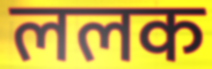
ललक